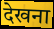
देखना